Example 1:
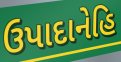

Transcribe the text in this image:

ઉપાદાનેહિ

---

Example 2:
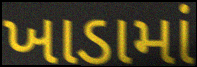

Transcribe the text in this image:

ખાડામાં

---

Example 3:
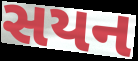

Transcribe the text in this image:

સયન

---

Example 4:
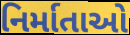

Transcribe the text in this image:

નિર્માતાઓ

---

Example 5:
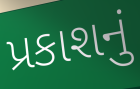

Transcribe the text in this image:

પ્રકાશનું